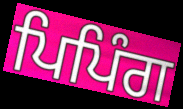
ਪਿਪਿੰਗ